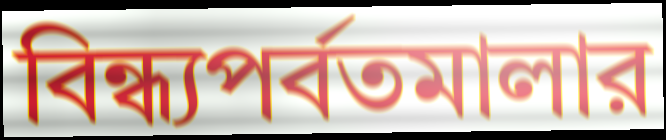
বিন্ধ্যপর্বতমালার